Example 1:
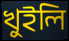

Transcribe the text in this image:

খুইলি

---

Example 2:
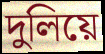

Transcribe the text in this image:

দুলিয়ে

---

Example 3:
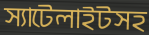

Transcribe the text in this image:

স্যাটেলাইটসহ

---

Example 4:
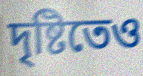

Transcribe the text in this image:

দৃষ্টিতেও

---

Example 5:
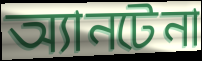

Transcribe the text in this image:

অ্যানটেনা